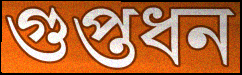
গুপ্তধন